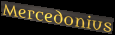
Mercedonius